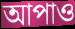
আপাও